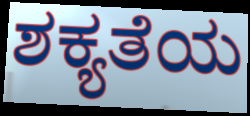
ಶಕ್ಯತೆಯ